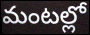
మంటల్లో